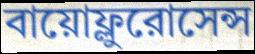
বায়োফ্লুরোসেন্স